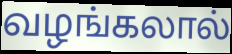
வழங்கலால்